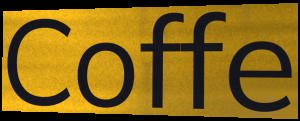
Coffe